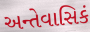
અન્તેવાસિકં